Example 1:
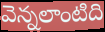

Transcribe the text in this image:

వెన్నలాంటిది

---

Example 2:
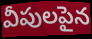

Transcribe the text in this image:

వీపులపైన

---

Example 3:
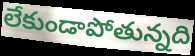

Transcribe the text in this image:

లేకుండాపోతున్నది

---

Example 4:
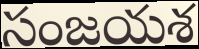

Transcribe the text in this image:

సంజయశ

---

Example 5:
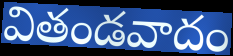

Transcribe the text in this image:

వితండవాదం